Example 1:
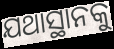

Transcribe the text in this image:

ଯଥାସ୍ଥାନକୁ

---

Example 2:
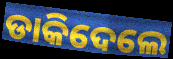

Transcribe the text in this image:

ଡାକିଦେଲେ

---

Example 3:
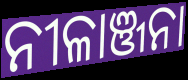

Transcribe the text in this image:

ନୀଳାଞ୍ଜନା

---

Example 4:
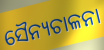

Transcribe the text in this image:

ସୈନ୍ୟଚାଳନା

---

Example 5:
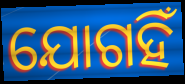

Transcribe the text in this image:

ଯୋଗହିଁ